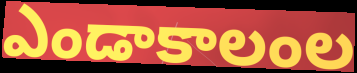
ఎండాకాలంల